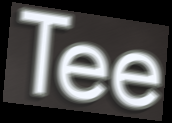
Tee